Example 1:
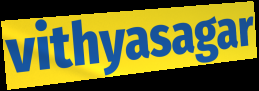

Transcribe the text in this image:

vithyasagar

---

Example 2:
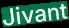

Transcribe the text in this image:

Jivant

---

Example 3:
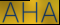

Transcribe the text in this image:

AHA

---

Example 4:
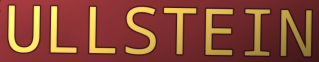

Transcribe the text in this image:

ULLSTEIN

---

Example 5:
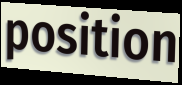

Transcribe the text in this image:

position